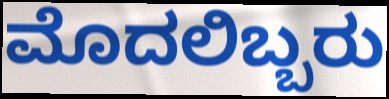
ಮೊದಲಿಬ್ಬರು